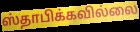
ஸ்தாபிக்கவில்லை